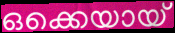
ഒക്കെയായ്